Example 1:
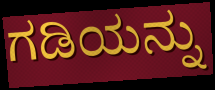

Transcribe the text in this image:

ಗಡಿಯನ್ನು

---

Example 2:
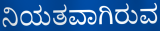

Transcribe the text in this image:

ನಿಯತವಾಗಿರುವ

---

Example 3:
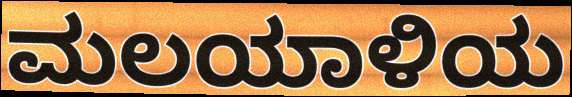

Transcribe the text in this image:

ಮಲಯಾಳಿಯ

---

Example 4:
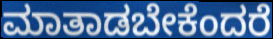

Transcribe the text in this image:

ಮಾತಾಡಬೇಕೆಂದರೆ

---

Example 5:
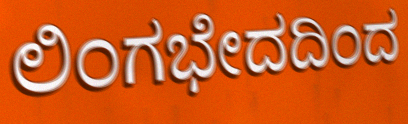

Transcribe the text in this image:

ಲಿಂಗಭೇದದಿಂದ